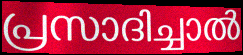
പ്രസാദിച്ചാൽ